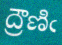
ద్రౌణిఁ